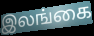
இலங்கை